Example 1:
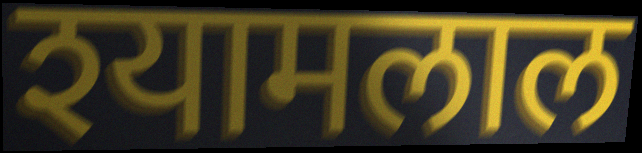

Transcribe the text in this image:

श्यामलाल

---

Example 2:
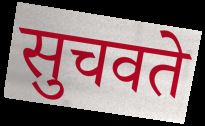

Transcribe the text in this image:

सुचवते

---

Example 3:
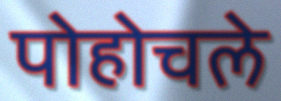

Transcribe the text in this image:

पोहोचले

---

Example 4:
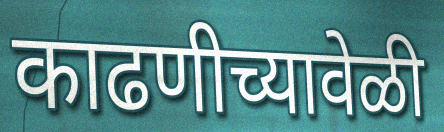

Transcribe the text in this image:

काढणीच्यावेळी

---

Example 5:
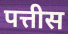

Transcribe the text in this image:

पत्तीस